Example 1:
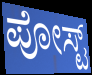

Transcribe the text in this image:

ಪೋಸ್ಟ್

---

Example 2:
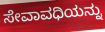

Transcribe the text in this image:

ಸೇವಾವಧಿಯನ್ನು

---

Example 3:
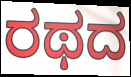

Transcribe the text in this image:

ರಥದ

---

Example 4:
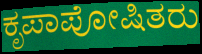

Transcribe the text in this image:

ಕೃಪಾಪೋಷಿತರು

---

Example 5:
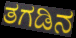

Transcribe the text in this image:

ತಗಡಿನ